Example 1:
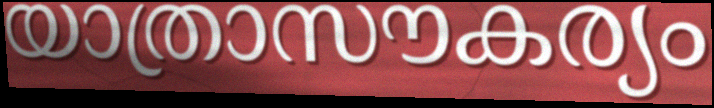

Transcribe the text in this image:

യാത്രാസൗകര്യം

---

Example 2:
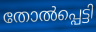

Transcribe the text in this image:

തോൽപ്പെട്ടി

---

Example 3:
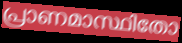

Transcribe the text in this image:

പ്രാണമാസ്ഥിതോ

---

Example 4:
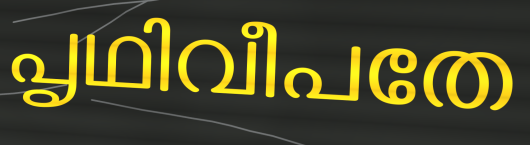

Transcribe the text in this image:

പൃഥിവീപതേ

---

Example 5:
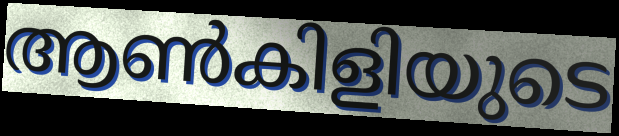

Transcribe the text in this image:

ആൺകിളിയുടെ